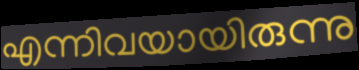
എന്നിവയായിരുന്നു